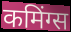
कमिंग्स